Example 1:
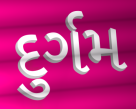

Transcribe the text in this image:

દુર્ગમ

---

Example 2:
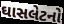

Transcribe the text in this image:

ઘાસલેટનો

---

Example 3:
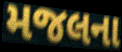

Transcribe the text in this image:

મજલના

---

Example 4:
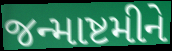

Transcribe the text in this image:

જન્માષ્ટમીને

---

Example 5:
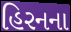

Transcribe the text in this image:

હિરનના